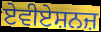
ਏਵੀਏਸ਼ਨਜ਼